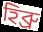
হিব্রু